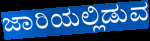
ಜಾರಿಯಲ್ಲಿಡುವ